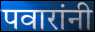
पवारांनी